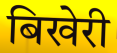
बिखेरी